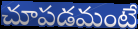
చూపడమంటే